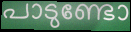
പാടുണ്ടോ